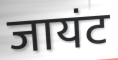
जायंट